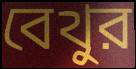
বেথুর